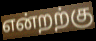
என்றற்கு